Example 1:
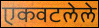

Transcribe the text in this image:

एकवटलेले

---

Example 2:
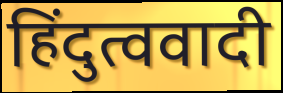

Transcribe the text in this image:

हिंदुत्ववादी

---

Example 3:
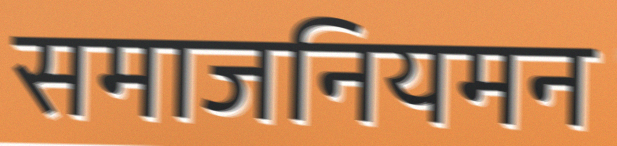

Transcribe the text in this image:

समाजनियमन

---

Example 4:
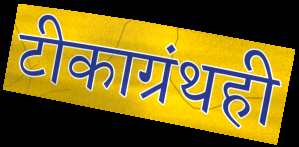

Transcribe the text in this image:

टीकाग्रंथही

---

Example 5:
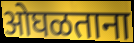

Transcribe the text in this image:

ओघळताना